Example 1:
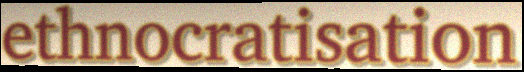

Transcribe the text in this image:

ethnocratisation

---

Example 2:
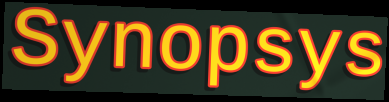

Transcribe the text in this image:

Synopsys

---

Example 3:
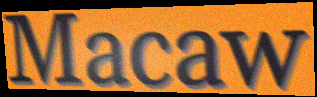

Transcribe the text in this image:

Macaw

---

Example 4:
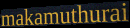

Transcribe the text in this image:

makamuthurai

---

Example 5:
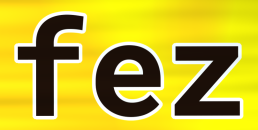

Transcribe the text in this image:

fez